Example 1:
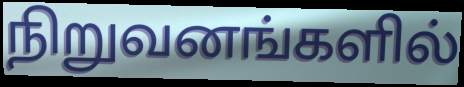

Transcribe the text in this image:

நிறுவனங்களில்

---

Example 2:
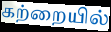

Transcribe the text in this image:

கற்றையில்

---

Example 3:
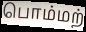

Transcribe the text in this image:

பொம்மற்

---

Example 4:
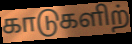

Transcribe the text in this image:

காடுகளிற்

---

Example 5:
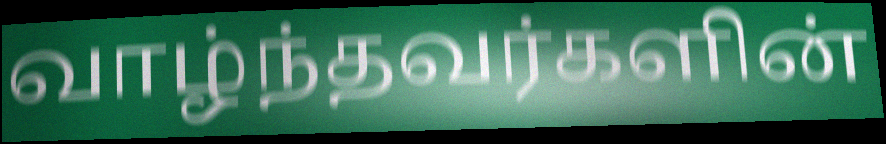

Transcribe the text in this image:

வாழ்ந்தவர்களின்